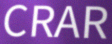
CRAR